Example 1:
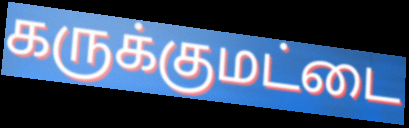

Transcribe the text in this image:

கருக்குமட்டை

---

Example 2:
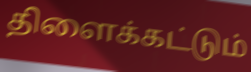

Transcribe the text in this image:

திளைக்கட்டும்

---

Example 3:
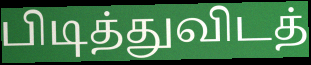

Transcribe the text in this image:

பிடித்துவிடத்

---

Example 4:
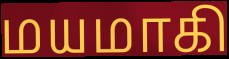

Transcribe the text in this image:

மயமாகி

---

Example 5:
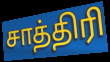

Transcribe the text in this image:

சாத்திரி